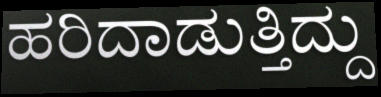
ಹರಿದಾಡುತ್ತಿದ್ದು